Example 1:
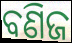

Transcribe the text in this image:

ବଣିଜ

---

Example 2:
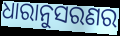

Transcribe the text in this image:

ଧାରାନୁସରଣର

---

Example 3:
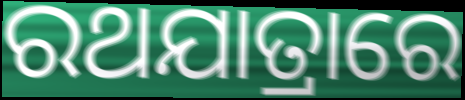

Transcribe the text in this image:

ରଥଯାତ୍ରାରେ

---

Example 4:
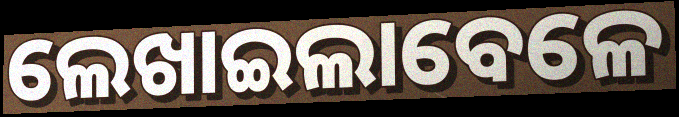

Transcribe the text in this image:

ଲେଖାଇଲାବେଳେ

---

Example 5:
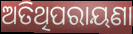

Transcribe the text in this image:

ଅତିଥିପରାୟଣା